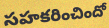
సహకరించిందో